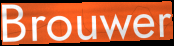
Brouwer